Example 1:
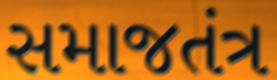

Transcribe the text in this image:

સમાજતંત્ર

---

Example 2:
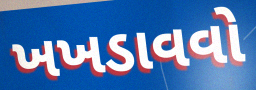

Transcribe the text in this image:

ખખડાવવો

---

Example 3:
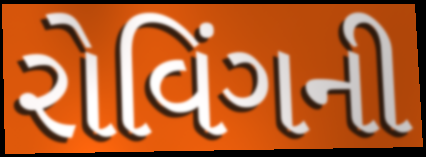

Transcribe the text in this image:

રોવિંગની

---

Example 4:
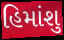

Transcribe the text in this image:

હિમાંશુ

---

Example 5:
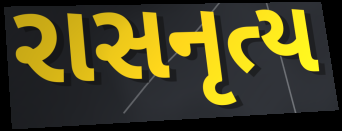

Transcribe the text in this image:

રાસનૃત્ય